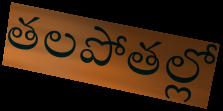
తలపోతల్లో